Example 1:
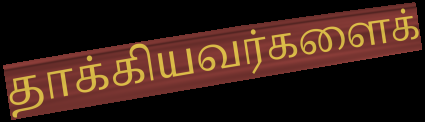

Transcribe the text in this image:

தாக்கியவர்களைக்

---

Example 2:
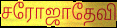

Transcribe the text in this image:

சரோஜாதேவி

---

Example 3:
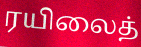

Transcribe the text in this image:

ரயிலைத்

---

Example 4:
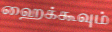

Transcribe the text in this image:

ஹைக்கூவும்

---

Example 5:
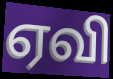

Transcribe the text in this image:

ஏவி